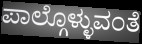
ಪಾಲ್ಗೊಳ್ಳುವಂತೆ